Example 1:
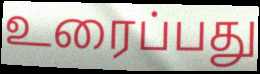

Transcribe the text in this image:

உரைப்பது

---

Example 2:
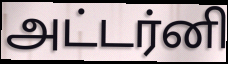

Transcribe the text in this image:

அட்டர்னி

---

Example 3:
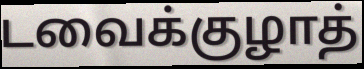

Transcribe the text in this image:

டவைக்குழாத்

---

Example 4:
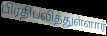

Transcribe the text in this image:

பிரதிபலித்துள்ளார்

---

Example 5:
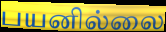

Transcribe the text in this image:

பயனில்லை